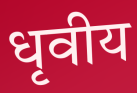
धृवीय